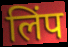
लिंप